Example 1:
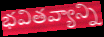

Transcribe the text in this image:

భవితవ్యాన్ని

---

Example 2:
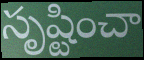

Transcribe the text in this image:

సృష్టించా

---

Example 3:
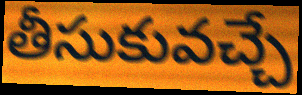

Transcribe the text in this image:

తీసుకువచ్చే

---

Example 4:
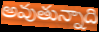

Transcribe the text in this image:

అవుతున్నాది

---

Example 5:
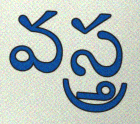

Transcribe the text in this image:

వస్త్ర